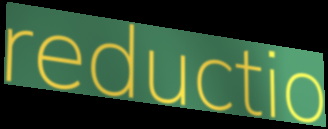
reductio